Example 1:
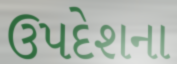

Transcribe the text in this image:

ઉપદેશના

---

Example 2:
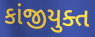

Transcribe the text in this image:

કાંજીયુક્ત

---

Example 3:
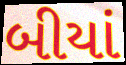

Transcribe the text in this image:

બીયાં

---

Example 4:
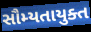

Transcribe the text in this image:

સૌમ્યતાયુક્ત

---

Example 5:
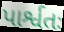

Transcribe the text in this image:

પાર્શ્વતઃ